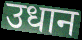
उधान